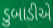
ડુબાડીએ